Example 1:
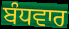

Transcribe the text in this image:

ਬੰਧਵਾਰ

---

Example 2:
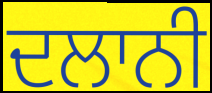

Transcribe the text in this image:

ਦਲਾਨੀ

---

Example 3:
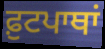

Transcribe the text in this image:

ਫ਼ੁਟਪਾਥਾਂ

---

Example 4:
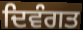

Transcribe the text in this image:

ਦਿਵੰਗਤ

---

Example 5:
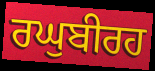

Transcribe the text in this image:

ਰਘੁਬੀਰਹ